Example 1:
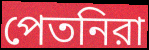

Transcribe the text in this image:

পেতনিরা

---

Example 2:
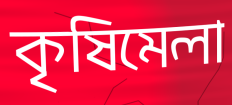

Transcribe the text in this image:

কৃষিমেলা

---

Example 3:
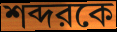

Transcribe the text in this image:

শব্দরকে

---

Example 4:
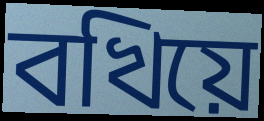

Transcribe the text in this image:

বখিয়ে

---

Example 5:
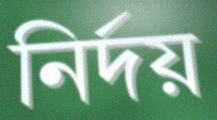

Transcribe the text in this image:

নির্দয়